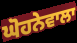
ਘੋਹਨੇਵਾਲਾ